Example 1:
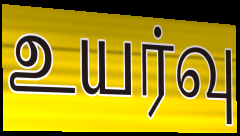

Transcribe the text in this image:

உயர்வு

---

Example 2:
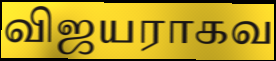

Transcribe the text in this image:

விஜயராகவ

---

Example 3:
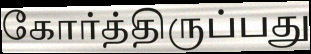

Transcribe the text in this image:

கோர்த்திருப்பது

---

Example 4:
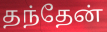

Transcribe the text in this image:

தந்தேன்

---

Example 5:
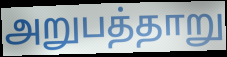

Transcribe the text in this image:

அறுபத்தாறு